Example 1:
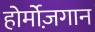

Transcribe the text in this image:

होर्मोज़गान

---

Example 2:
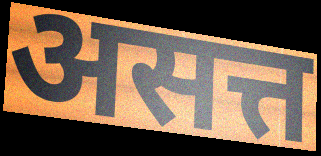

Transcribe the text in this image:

असत्त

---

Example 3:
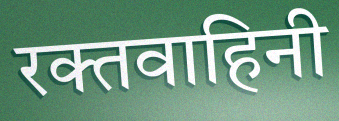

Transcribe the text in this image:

रक्तवाहिनी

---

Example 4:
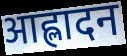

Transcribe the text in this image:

आह्लादन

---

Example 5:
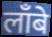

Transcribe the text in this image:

लाँबे